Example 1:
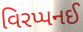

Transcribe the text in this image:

વિરપ્પનઈ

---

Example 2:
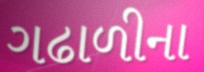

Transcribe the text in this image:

ગઢાળીના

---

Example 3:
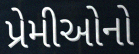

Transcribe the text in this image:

પ્રેમીઓનો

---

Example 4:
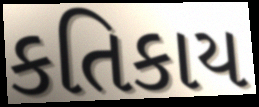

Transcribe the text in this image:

કતિકાય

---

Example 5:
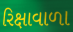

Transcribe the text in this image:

રિક્ષાવાળા